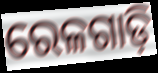
ରେଳଗାଡ଼ି